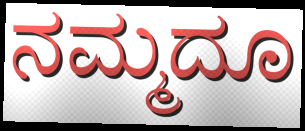
ನಮ್ಮದೂ